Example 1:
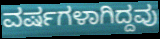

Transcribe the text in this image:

ವರ್ಷಗಳಾಗಿದ್ದವು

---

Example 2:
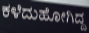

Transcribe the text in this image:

ಕಳೆದುಹೋಗಿದ್ದ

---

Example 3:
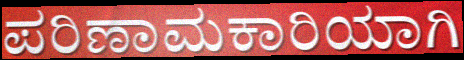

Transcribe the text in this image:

ಪರಿಣಾಮಕಾರಿಯಾಗಿ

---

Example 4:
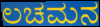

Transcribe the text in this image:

ಲಚಮನ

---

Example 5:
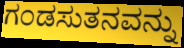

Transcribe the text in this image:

ಗಂಡಸುತನವನ್ನು